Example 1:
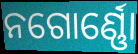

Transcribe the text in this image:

ନଗୋର୍ଣ୍ଣୋ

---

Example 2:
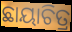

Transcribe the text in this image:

ଛାୟାଚିତ୍ର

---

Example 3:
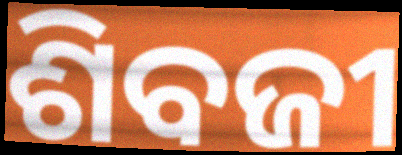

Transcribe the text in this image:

ଶିବଜୀ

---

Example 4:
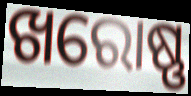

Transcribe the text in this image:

ଖରୋଷ୍ଣ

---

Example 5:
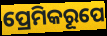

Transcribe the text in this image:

ପ୍ରେମିକରୂପେ